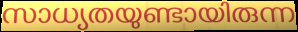
സാധ്യതയുണ്ടായിരുന്ന